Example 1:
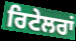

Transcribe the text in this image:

ਰਿਟੇਲਰਾਂ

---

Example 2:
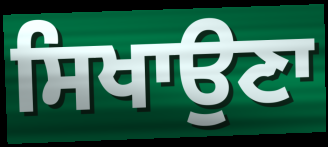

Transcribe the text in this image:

ਸਿਖਾਉਣਾ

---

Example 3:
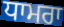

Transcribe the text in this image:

ਧਾਮਰਾ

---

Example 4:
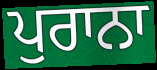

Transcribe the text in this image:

ਪੁਰਾਨਾ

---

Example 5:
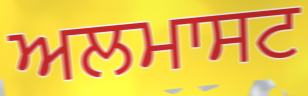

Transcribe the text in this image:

ਅਲਮਾਸਟ